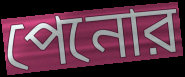
পেনোর